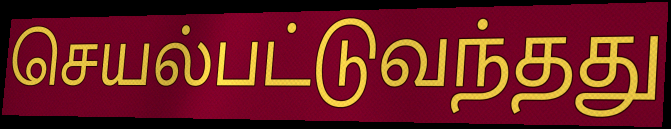
செயல்பட்டுவந்தது